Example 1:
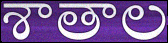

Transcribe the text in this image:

శాతాల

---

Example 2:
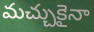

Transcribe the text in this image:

మచ్చుకైనా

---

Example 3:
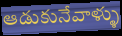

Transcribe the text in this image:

ఆడుకునేవాళ్ళు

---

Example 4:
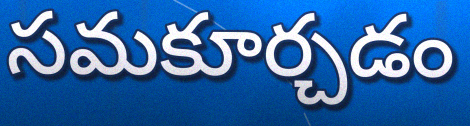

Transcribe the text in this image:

సమకూర్చడం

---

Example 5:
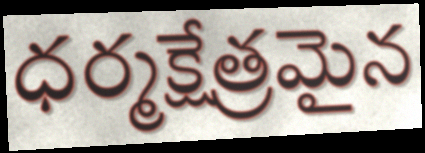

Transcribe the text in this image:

ధర్మక్షేత్రమైన